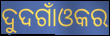
ଦୁଦଗାଁଓକର